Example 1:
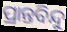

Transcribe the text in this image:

ପ୍ରାନ୍ତବିନ୍ଦୁ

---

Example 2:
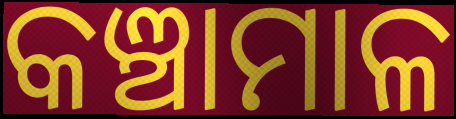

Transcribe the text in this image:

କଞ୍ଚାମାଳ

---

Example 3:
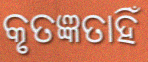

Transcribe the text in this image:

କୃତଜ୍ଞତାହିଁ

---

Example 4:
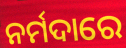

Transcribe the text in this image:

ନର୍ମଦାରେ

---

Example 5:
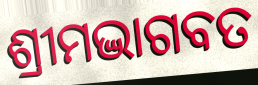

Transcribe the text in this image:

ଶ୍ରୀମଦ୍ଭାଗବତ